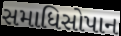
સમાધિસોપાન